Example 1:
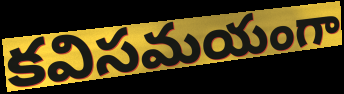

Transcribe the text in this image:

కవిసమయంగా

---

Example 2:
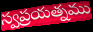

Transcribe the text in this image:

స్వప్రయత్నము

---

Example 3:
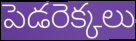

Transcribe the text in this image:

పెడరెక్కలు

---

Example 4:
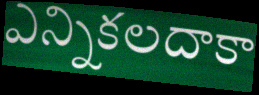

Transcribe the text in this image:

ఎన్నికలదాకా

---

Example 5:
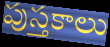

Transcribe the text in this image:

పుస్తకాలు